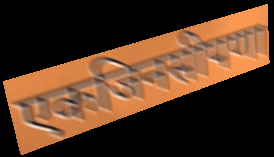
एकजिनसीपणा